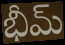
భీమ్